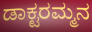
ಡಾಕ್ಟರಮ್ಮನ